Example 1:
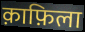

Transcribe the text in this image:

क़ाफ़िला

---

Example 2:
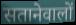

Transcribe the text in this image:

सतानेवालों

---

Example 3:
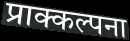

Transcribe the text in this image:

प्राक्कल्पना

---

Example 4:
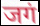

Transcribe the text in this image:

जगं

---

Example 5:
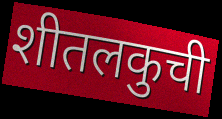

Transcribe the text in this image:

शीतलकुची